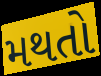
મથતો